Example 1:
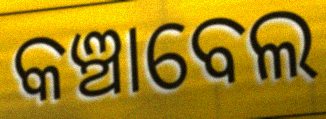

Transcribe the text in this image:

କଞ୍ଚାବେଲ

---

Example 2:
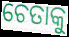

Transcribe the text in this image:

ଚେତାକୁ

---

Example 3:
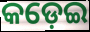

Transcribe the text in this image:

କଡ଼େଇ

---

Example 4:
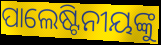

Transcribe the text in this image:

ପାଲେଷ୍ଟିନୀୟଙ୍କୁ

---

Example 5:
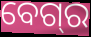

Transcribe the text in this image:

ବେଗ୍‌ର